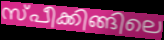
സ്പീക്കിങ്ങിലെ